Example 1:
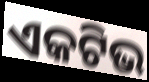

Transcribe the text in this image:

ଏକଟିଭ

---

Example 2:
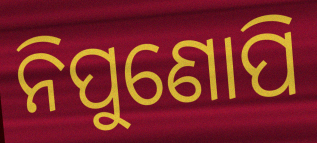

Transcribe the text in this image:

ନିପୁଣୋପି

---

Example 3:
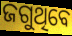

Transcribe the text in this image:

ଜଗୁଥିବେ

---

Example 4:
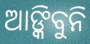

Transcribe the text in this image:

ଆଙ୍କିବୁନି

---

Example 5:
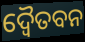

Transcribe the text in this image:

ଦ୍ବୈତବନ